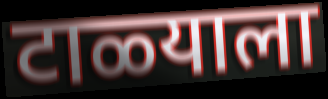
टाळ्याला